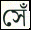
সেঁ